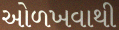
ઓળખવાથી